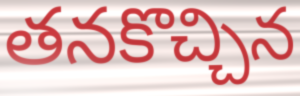
తనకొచ్చిన